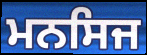
ਮਨਸਿਜ